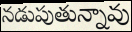
నడుపుతున్నావు